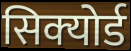
सिक्‍योर्ड